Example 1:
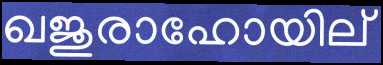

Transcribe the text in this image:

ഖജുരാഹോയില്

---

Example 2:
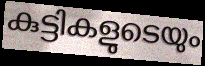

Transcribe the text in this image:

കുട്ടികളുടെയും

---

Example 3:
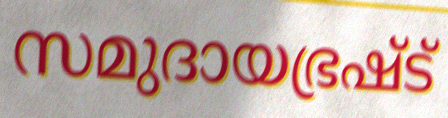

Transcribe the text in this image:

സമുദായഭ്രഷ്ട്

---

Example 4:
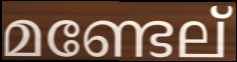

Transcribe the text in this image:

മണ്ടേല്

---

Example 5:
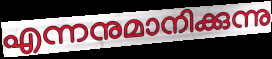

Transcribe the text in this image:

എന്നനുമാനിക്കുന്നു